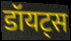
डॉयट्स